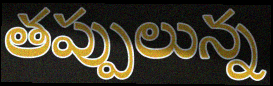
తప్పులున్న